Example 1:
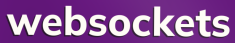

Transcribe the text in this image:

websockets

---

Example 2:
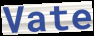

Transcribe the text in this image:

Vate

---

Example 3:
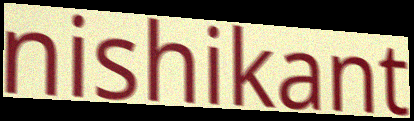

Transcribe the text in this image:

nishikant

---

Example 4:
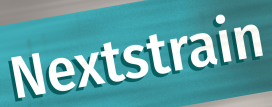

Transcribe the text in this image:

Nextstrain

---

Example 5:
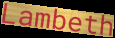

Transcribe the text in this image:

Lambeth